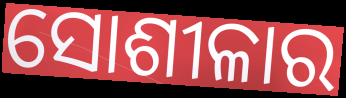
ସୋଶୀଳାର